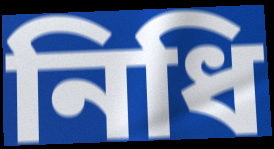
নিধি